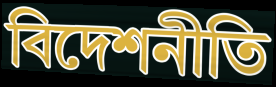
বিদেশনীতি